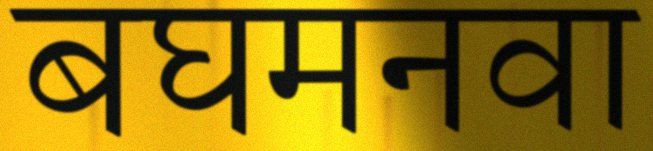
बघमनवा